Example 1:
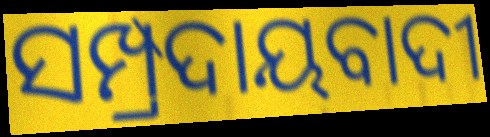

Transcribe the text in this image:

ସମ୍ପ୍ରଦାୟବାଦୀ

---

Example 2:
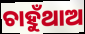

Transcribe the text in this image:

ଚାହୁଁଥାଅ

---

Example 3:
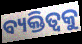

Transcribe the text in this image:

ବ୍ୟକ୍ତିତ୍ଵକୁ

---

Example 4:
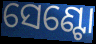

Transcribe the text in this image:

ସେଣ୍ଟୋ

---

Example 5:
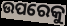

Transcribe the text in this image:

ଉପରେକୁ